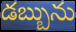
డబ్బును